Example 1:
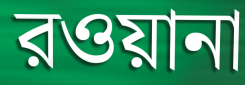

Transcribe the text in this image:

রওয়ানা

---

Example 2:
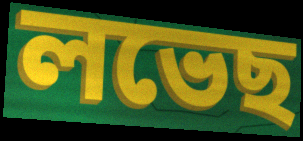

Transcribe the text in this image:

লভেছ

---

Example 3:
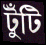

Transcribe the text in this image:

টুঁটি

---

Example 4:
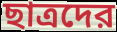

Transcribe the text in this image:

ছাত্রদের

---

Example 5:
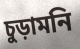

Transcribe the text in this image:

চুড়ামনি